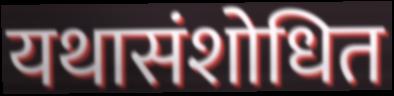
यथासंशोधित